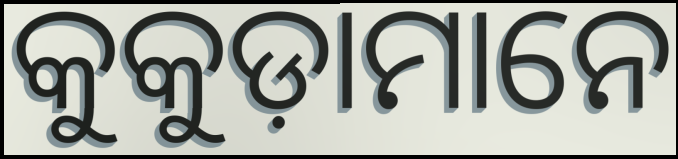
କୁକୁଡ଼ାମାନେ